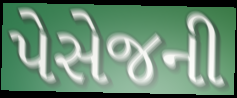
પેસેજની